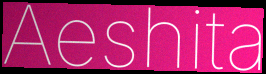
Aeshita